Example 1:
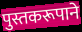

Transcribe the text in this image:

पुस्तकरूपाने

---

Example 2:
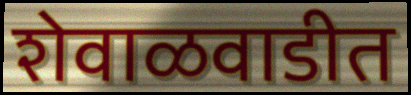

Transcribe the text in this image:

शेवाळवाडीत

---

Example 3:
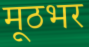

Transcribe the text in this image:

मूठभर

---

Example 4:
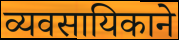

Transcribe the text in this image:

व्यवसायिकाने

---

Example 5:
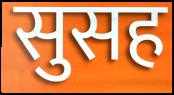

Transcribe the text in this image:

सुसह